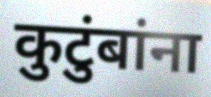
कुटुंबांना